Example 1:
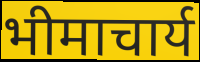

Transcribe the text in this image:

भीमाचार्य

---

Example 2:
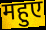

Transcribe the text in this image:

महुए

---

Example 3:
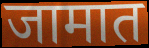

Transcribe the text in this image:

जामात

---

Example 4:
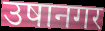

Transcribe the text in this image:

उषानगर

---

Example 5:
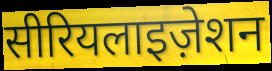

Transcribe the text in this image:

सीरियलाइज़ेशन